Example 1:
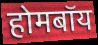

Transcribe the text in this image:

होमबॉय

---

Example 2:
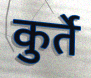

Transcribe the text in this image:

कुर्ते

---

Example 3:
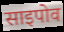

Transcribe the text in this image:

साइपोव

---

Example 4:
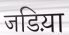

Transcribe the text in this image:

जडिय़ा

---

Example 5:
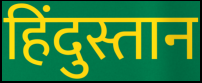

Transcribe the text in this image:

हिंदुस्तान